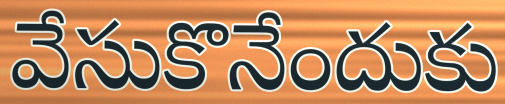
వేసుకొనేందుకు